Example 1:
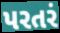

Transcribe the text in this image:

પરતરં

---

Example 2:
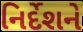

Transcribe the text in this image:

નિર્દેશને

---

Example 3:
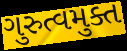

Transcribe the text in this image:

ગુરુત્વમુક્ત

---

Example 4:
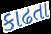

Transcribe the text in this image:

કાઢતા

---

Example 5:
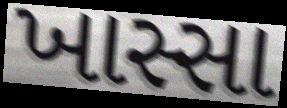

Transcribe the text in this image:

ખાસ્સા